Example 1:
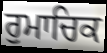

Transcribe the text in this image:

ਰੁਮਾਚਿਕ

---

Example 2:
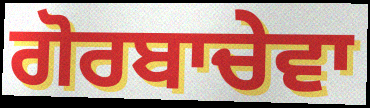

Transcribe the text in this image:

ਗੋਰਬਾਚੇਵਾ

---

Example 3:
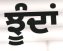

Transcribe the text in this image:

ਝੂੰਦਾਂ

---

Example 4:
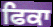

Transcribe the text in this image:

ਫਿਕਾ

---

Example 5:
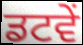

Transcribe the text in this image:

ਡਟਵੇਂ